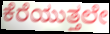
ಕೆರೆಯುತ್ತಲೇ